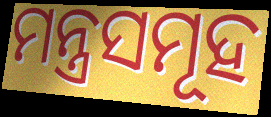
ମନ୍ତ୍ରସମୂହ